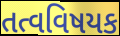
તત્વવિષયક